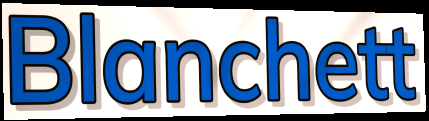
Blanchett